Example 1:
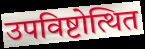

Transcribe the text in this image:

उपविष्टोत्थित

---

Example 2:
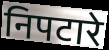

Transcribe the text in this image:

निपटारे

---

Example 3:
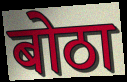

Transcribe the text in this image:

बोठा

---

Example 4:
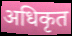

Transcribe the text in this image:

अधिकृत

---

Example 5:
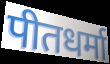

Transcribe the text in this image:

पीतधर्मा